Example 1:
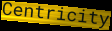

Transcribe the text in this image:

Centricity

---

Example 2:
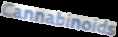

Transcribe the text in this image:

Cannabinoids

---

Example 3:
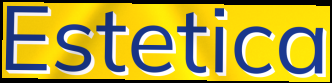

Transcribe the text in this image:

Estetica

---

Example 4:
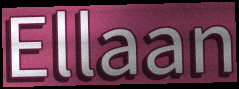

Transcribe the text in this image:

Ellaan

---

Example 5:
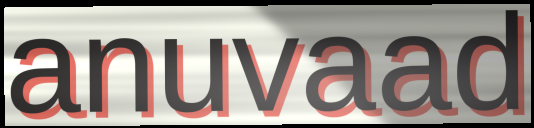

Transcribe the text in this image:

anuvaad